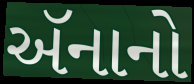
ઍનાનો